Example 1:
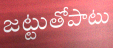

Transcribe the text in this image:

జట్టుతోపాటు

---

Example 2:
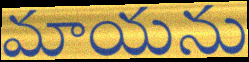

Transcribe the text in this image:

మాయను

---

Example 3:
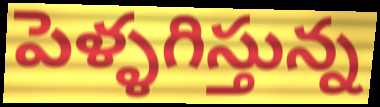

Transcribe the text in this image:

పెళ్ళగిస్తున్న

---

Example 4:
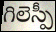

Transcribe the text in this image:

గిలెస్పీ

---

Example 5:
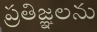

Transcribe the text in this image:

ప్రతిజ్ఞలను